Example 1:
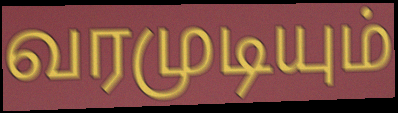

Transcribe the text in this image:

வரமுடியும்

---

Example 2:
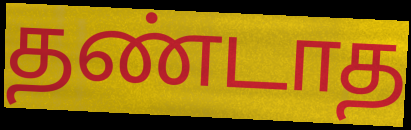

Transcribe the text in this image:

தண்டாத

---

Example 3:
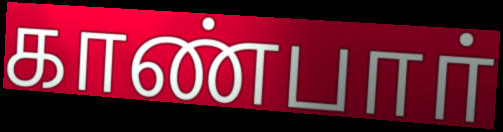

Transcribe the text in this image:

காண்பார்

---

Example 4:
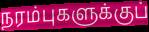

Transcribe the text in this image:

நரம்புகளுக்குப்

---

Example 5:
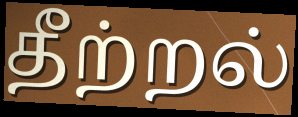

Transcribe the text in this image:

தீற்றல்